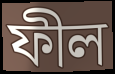
ফীল